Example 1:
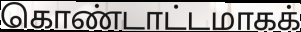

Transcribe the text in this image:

கொண்டாட்டமாகக்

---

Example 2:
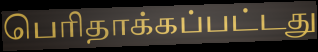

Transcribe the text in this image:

பெரிதாக்கப்பட்டது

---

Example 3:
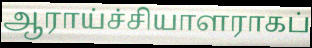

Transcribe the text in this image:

ஆராய்ச்சியாளராகப்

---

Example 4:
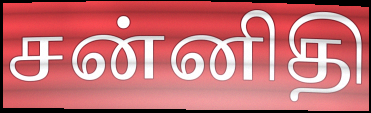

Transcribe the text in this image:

சன்னிதி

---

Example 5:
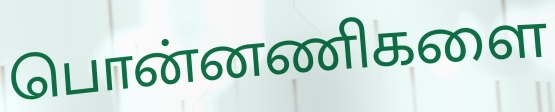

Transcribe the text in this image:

பொன்னணிகளை